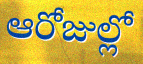
ఆరోజుల్లో